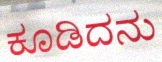
ಕೂಡಿದನು